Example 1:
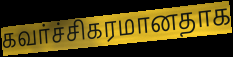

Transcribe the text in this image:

கவர்ச்சிகரமானதாக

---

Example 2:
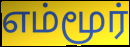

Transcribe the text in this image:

எம்மூர்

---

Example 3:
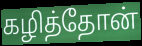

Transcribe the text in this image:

கழித்தோன்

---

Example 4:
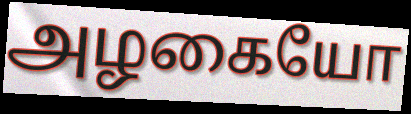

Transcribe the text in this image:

அழகையோ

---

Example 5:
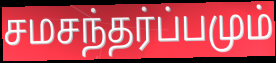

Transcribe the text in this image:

சமசந்தர்ப்பமும்